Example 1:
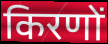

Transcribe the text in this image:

किरणों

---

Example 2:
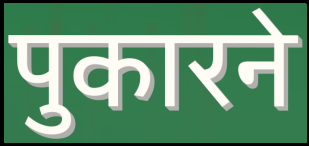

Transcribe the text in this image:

पुकारने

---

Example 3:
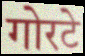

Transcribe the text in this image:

गोरटे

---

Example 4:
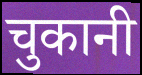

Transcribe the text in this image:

चुकानी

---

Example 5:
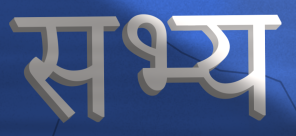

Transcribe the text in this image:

सभ्य